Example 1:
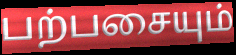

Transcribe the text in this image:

பற்பசையும்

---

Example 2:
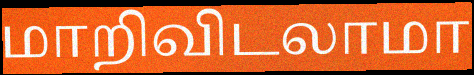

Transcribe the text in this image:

மாறிவிடலாமா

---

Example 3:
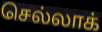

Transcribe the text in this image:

செல்லாக்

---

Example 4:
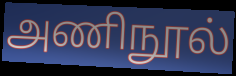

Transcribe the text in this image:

அணிநூல்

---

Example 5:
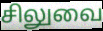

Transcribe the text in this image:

சிலுவை